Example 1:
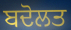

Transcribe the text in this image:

ਬਦੋਲਤ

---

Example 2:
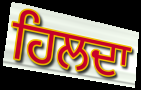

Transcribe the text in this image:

ਹਿਲਦਾ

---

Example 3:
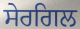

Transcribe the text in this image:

ਸੇਰਗਿਲ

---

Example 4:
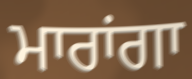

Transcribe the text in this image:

ਮਾਰਾਂਗਾ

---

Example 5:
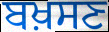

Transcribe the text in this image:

ਬਖ਼ਸਣ